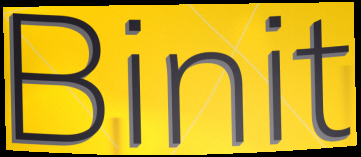
Binit